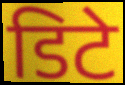
डिटे